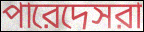
পারেদেসরা